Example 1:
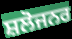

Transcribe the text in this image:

ਸ਼ਲੋਜਨਰ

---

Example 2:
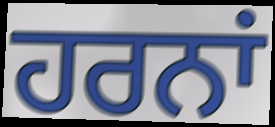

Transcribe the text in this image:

ਹਰਨਾਂ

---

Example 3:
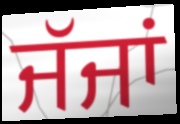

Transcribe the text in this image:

ਜੱਜਾਂ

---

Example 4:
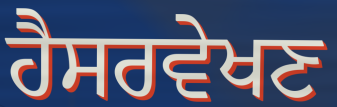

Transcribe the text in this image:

ਹੈਸਰਵੇਖਣ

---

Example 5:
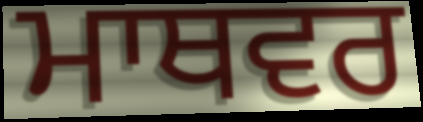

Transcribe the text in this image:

ਮਾਥਵਰ